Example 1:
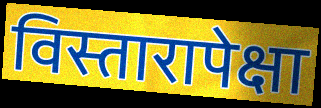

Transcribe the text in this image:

विस्तारापेक्षा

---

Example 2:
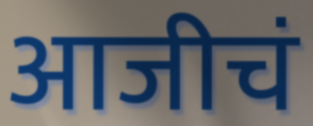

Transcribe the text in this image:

आजीचं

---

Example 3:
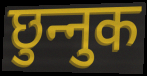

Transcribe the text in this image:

छुन्नुक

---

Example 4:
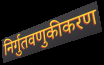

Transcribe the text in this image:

निर्गुतवणुकीकरण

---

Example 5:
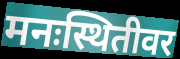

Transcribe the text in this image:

मनःस्थितीवर